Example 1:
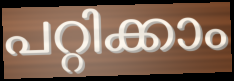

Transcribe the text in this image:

പറ്റിക്കാം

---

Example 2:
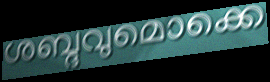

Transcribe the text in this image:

ശബ്ദവുമൊക്കെ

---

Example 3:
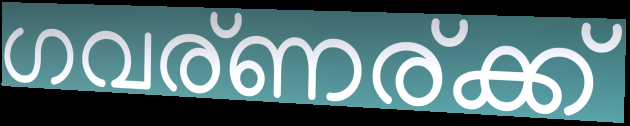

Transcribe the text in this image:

ഗവര്ണര്ക്ക്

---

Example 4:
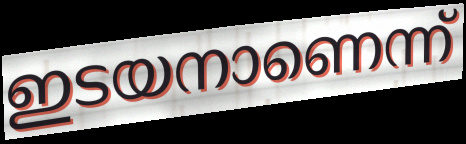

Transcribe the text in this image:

ഇടയനാണെന്ന്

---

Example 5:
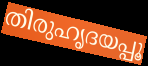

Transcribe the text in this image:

തിരുഹൃദയപ്പൂ